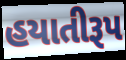
હયાતીરૂપ